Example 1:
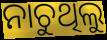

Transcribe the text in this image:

ନାଚୁଥିଲୁ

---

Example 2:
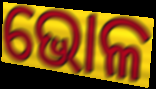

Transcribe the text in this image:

ଭୋଳ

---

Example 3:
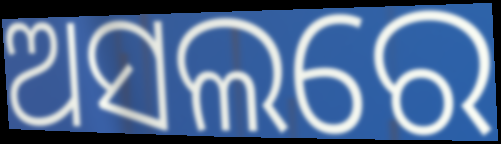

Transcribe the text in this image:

ଅସଲରେ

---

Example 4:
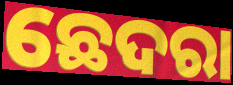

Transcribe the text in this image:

ଛେଦରା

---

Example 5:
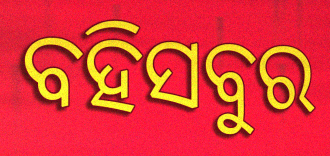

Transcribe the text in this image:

ବହିସବୁର